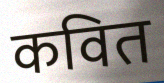
कवित